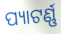
ପ୍ୟାଟର୍ଣ୍ଣ